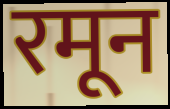
रमून